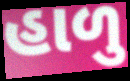
હાળુ